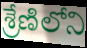
శ్రేణిలోని